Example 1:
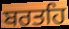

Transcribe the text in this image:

ਬਰਤਹਿ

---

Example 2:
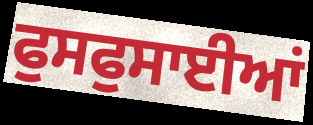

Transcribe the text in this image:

ਫੁਸਫੁਸਾਈਆਂ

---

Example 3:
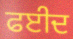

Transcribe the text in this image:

ਫਈਦ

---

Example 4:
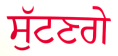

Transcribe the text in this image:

ਸੁੱਟਣਗੇ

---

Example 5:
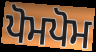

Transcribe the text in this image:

ਪੋਮਪੋਮ